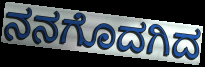
ನನಗೊದಗಿದ